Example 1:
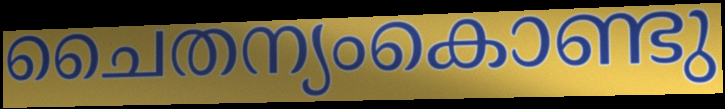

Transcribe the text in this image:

ചൈതന്യംകൊണ്ടു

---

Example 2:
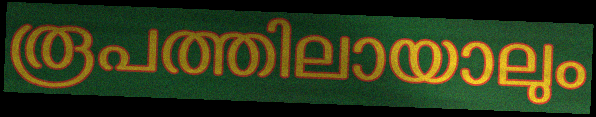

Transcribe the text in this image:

രൂപത്തിലായാലും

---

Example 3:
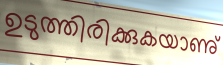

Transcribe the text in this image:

ഉടുത്തിരിക്കുകയാണു്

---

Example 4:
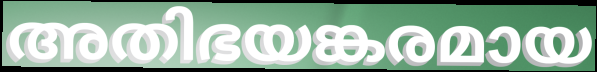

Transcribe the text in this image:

അതിഭയങ്കരമായ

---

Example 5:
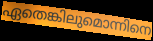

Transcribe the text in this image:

ഏതെങ്കിലുമൊന്നിനെ